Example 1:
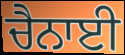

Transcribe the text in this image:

ਚੈਨਾਈ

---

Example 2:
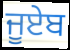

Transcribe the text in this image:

ਜੂਏਬ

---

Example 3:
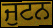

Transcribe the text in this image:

ਜੁਟਨ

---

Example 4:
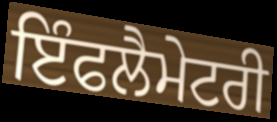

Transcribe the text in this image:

ਇੰਫਲੈਮੇਟਰੀ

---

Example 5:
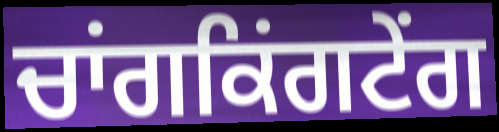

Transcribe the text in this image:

ਚਾਂਗਕਿਂਗਟੇਂਗ